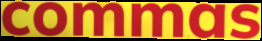
commas